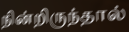
நின்றிருந்தால்